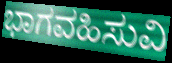
ಭಾಗವಹಿಸುವಿ